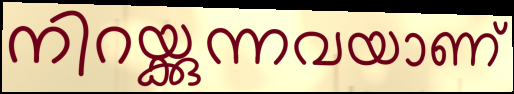
നിറയ്ക്കുന്നവയാണ്